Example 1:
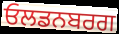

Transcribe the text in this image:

ਓਲਡਨਬਰਗ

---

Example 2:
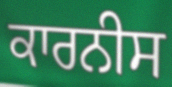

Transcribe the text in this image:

ਕਾਰਨੀਸ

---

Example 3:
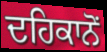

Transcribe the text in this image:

ਦਹਿਕਾਨੋਂ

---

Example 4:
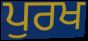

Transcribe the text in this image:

ਪੁਰਖ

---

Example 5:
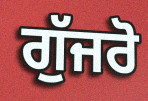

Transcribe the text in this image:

ਗੁੱਜਰੋ